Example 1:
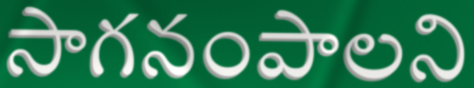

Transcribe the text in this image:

సాగనంపాలని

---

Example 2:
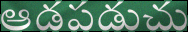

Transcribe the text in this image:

ఆడపడుచు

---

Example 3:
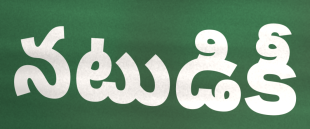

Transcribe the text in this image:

నటుడికీ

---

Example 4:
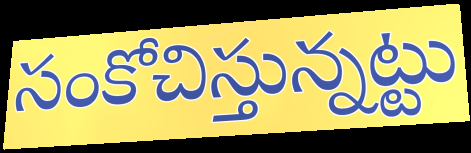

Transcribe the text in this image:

సంకోచిస్తున్నట్టు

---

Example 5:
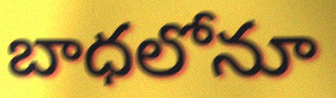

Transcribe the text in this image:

బాధలోనూ